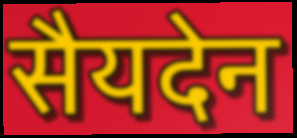
सैयदेन